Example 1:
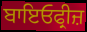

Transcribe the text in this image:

ਬਾਇਓਫ੍ਰੀਜ਼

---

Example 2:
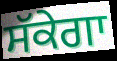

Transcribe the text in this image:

ਸੱਕੇਗਾ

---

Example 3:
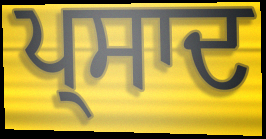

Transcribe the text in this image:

ਪ੍ਸਾਦ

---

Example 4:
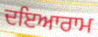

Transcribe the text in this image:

ਦਇਆਰਾਮ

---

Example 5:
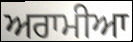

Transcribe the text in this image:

ਅਰਾਮੀਆ